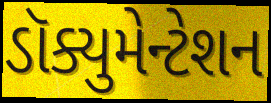
ડૉક્યુમેન્ટેશન